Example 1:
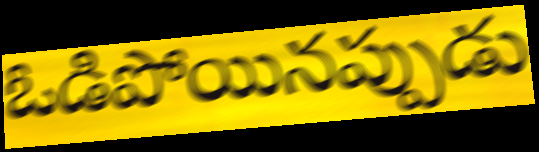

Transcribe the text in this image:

ఓడిపోయినప్పుడు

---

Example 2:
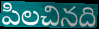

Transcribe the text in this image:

పిలచినది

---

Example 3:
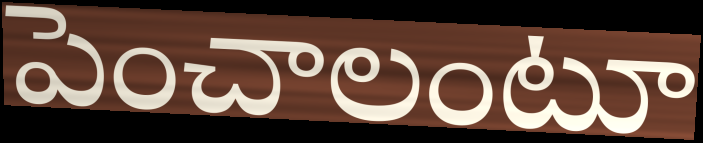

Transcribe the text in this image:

పెంచాలంటూ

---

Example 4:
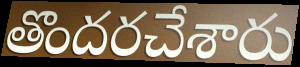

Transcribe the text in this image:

తొందరచేశారు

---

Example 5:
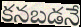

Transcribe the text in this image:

కనబడనే